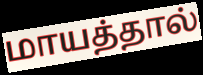
மாயத்தால்